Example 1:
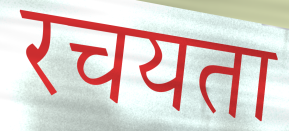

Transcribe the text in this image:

रचयता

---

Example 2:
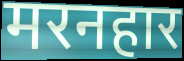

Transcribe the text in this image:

मरनहार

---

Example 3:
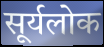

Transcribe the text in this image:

सूर्यलोक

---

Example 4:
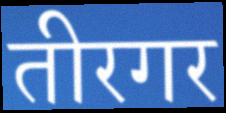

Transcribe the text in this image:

तीरगर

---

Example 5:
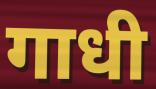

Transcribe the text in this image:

गाधी